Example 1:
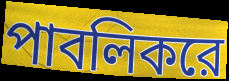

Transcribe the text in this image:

পাবলিকরে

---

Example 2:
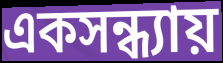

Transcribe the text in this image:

একসন্ধ্যায়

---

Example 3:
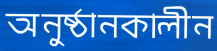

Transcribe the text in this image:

অনুষ্ঠানকালীন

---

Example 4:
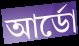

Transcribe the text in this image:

আর্ডো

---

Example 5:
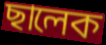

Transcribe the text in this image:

ছালেক